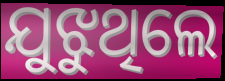
ଯୁଝୁଥିଲେ